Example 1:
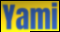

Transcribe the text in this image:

Yami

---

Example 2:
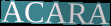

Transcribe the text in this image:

ACARA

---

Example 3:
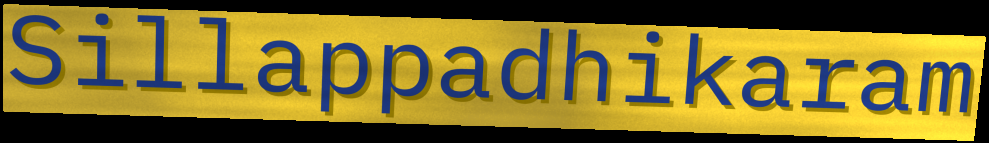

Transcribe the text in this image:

Sillappadhikaram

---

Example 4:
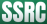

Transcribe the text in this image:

SSRC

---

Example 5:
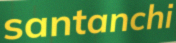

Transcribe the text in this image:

santanchi